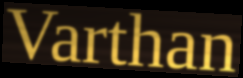
Varthan